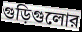
গুড়িগুলোর